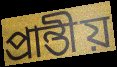
প্রান্তীয়